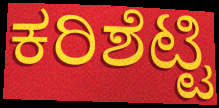
ಕರಿಶೆಟ್ಟಿ